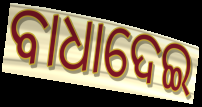
ବାଧାଦେଇ